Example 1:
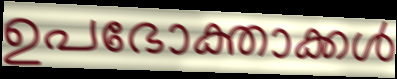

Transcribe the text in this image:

ഉപഭോക്താക്കൾ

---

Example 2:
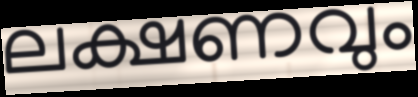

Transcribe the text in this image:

ലക്ഷണവും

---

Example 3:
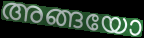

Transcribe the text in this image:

അങ്ങയോ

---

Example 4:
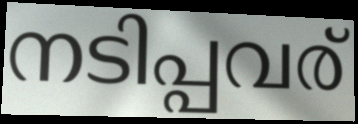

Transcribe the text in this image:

നടിപ്പവര്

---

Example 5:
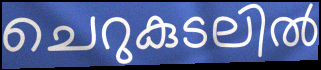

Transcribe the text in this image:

ചെറുകുടലിൽ